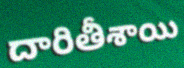
దారితీశాయి